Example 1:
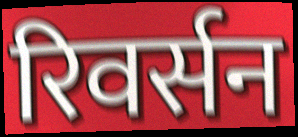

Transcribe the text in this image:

रिवर्सन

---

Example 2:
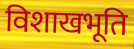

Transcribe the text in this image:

विशाखभूति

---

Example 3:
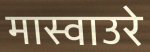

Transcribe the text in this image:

मास्वाउरे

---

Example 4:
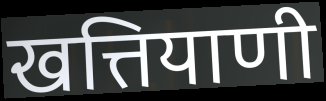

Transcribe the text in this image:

खत्तियाणी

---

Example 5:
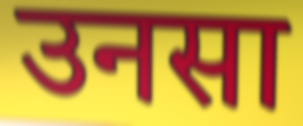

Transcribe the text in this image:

उनसा